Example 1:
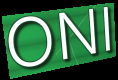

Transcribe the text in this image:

ONI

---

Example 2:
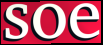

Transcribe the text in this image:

soe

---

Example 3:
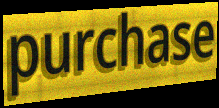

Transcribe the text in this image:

purchase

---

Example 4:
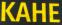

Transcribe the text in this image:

KAHE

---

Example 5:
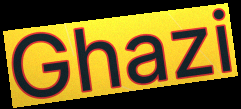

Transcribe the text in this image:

Ghazi